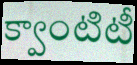
క్వాంటిటీ